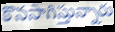
కొనసాగిస్తున్నారు